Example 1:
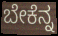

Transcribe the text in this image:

ಬೇಕೆನ್ನ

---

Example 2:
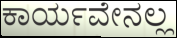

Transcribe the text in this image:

ಕಾರ್ಯವೇನಲ್ಲ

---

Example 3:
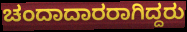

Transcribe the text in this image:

ಚಂದಾದಾರರಾಗಿದ್ದರು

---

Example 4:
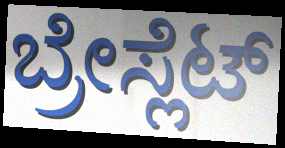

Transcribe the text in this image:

ಬ್ರೇಸ್ಲೆಟ್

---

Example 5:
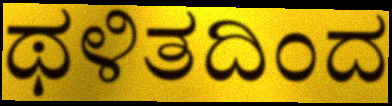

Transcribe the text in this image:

ಥಳಿತದಿಂದ